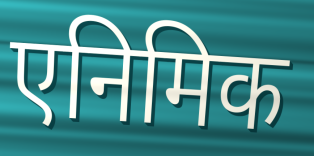
एनिमिक